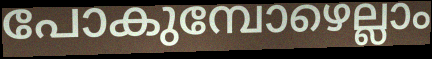
പോകുമ്പോഴെല്ലാം